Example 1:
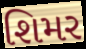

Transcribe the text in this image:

શિમર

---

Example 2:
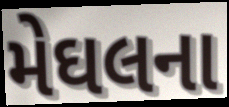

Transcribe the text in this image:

મેઘલના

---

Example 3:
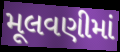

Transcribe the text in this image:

મૂલવણીમાં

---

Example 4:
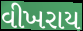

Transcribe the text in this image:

વીખરાય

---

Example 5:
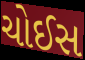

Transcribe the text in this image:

ચોઈસ